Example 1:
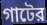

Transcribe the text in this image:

গাটের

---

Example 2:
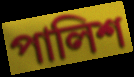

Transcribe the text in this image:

পালিশ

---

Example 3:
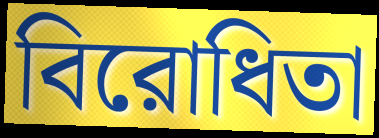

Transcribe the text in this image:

বিরোধিতা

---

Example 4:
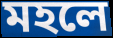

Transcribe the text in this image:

মহলে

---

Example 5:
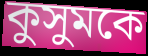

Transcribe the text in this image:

কুসুমকে